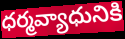
ధర్మవ్యాధునికి